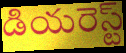
డియరెస్ట్